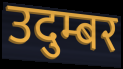
उदुम्बर